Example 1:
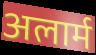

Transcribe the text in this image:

अलार्म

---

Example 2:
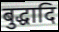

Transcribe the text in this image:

बुद्धादि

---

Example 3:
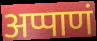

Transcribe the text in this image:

अप्पाणं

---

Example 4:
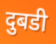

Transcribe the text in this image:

दुबडी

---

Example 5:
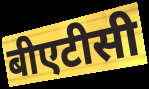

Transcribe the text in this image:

बीएटीसी